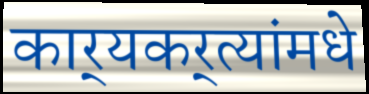
कार्यकर्त्यांमधे